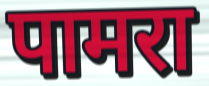
पामरा